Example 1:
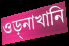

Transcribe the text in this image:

ওড়্নাখানি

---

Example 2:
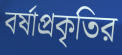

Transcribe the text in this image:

বর্ষাপ্রকৃতির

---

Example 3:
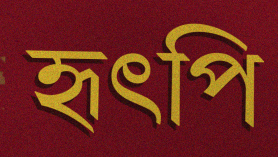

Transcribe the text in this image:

হৃৎপি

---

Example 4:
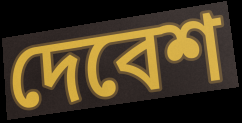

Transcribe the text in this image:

দেবেশ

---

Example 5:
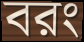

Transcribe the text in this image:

বরং